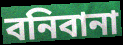
বনিবানা